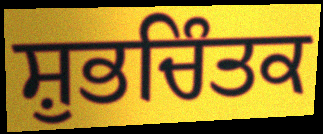
ਸ਼ੁਭਚਿੰਤਕ